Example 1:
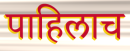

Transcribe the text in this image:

पाहिलाच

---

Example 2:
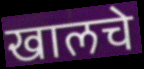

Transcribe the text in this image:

खालचे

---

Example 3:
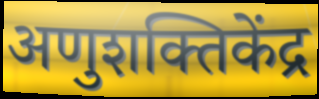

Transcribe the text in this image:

अणुशक्तिकेंद्र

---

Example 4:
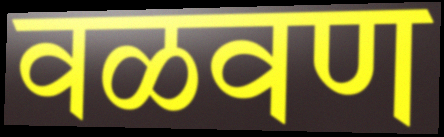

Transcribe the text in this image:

वळवण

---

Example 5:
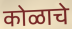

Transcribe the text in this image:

कोळाचे